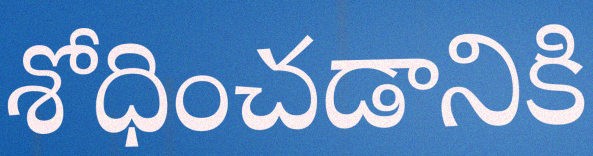
శోధించడానికి